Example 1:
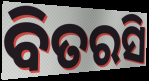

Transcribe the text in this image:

ବିତରସି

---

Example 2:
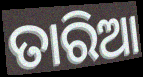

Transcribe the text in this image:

ତାରିଆ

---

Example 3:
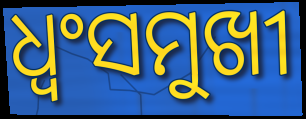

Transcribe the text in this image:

ଧ୍ୱଂସମୁଖୀ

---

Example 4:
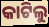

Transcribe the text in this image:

କାଟିଲୁ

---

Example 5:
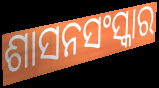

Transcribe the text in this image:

ଶାସନସଂସ୍କାର